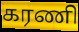
கரணி